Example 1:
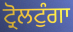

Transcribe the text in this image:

ਟ੍ਰੋਲਟੁੰਗਾ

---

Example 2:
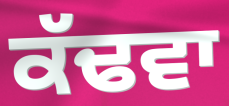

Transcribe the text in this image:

ਕੱਢਵਾ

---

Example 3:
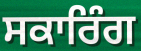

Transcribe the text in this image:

ਸਕਾਰਿੰਗ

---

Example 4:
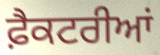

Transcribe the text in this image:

ਫ਼ੈਕਟਰੀਆਂ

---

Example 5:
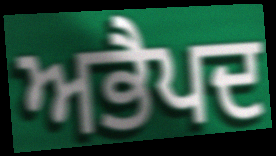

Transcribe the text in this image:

ਅਭੈਪਦ